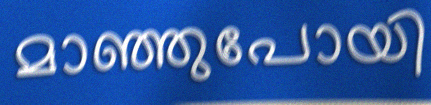
മാഞ്ഞുപോയി